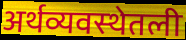
अर्थव्यवस्थेतली